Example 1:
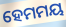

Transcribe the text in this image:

ହେମମୟ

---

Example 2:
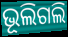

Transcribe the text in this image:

ଭୂଲିଗଲି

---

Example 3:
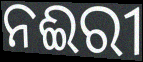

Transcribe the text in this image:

ନଈରୀ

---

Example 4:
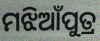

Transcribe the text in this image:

ମଝିଆଁପୁତ୍ର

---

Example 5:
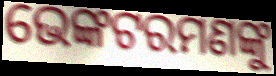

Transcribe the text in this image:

ଭେଙ୍କଟରମଣଙ୍କୁ